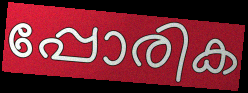
പ്പോരിക